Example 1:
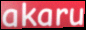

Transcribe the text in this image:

akaru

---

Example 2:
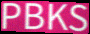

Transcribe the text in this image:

PBKS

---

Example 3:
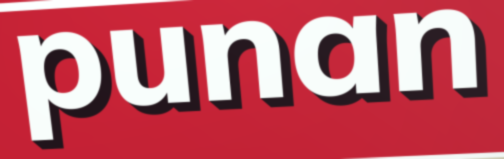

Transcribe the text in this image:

punan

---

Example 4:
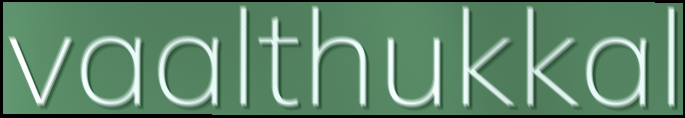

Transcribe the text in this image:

vaalthukkal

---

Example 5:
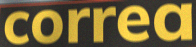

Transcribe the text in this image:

correa